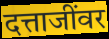
दत्ताजींवर